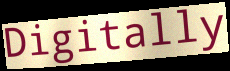
Digitally